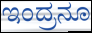
ಇಂದ್ರನೂ